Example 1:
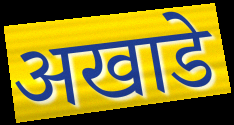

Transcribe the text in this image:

अखाडे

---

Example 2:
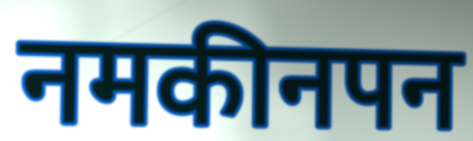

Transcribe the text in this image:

नमकीनपन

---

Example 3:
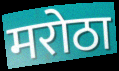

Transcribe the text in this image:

मरोठा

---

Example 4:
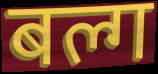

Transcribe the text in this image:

बल्ग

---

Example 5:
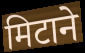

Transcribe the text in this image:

मिटाने